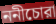
ননীচোরা